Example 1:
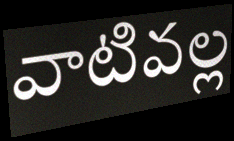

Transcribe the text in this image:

వాటివల్ల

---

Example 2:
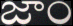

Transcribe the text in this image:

జాం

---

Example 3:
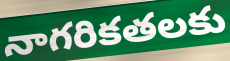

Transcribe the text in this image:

నాగరికతలకు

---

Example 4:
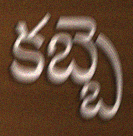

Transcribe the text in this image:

కబ్బె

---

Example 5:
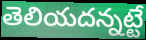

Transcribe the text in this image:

తెలియదన్నట్టే